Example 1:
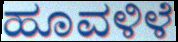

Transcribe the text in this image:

ಹೂವಳಿಳೆ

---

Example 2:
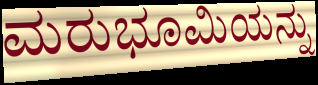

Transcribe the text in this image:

ಮರುಭೂಮಿಯನ್ನು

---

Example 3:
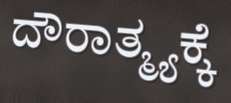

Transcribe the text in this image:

ದೌರಾತ್ಮ್ಯಕ್ಕೆ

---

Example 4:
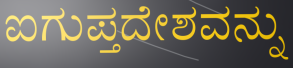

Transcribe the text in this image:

ಐಗುಪ್ತದೇಶವನ್ನು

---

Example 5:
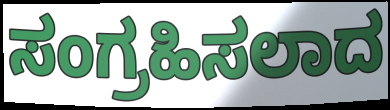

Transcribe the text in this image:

ಸಂಗ್ರಹಿಸಲಾದ